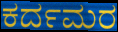
ಕರ್ದಮರ